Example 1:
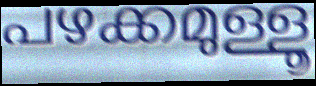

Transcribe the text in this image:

പഴക്കമുള്ളൂ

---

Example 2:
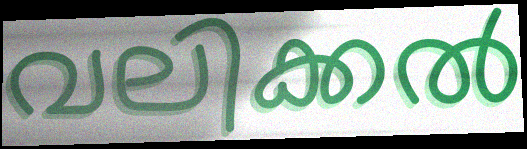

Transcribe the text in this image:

വലിക്കൽ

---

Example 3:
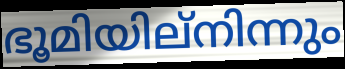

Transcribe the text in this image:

ഭൂമിയില്നിന്നും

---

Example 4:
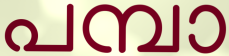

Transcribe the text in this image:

പമ്പാ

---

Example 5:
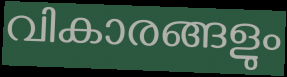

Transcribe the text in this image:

വികാരങ്ങളും